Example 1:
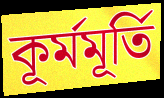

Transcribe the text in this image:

কূর্মমূর্তি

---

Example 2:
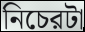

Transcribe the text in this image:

নিচেরটা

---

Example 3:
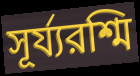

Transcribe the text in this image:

সূর্য্যরশ্মি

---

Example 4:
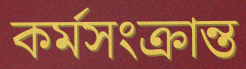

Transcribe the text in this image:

কর্মসংক্রান্ত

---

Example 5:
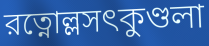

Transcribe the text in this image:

রত্নোল্লসৎকুণ্ডলা